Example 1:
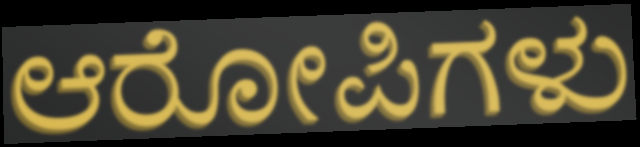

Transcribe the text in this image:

ಆರೋಪಿಗಳು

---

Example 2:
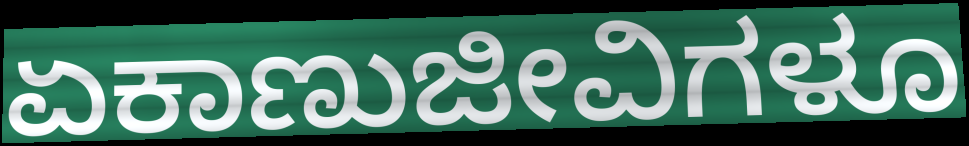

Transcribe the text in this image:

ಏಕಾಣುಜೀವಿಗಳೂ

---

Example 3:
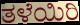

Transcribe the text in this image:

ತಳೆಯಿರಿ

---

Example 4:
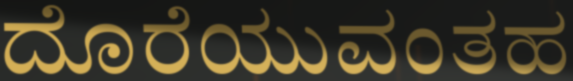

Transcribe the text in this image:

ದೊರೆಯುವಂತಹ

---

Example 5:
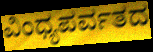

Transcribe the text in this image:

ವಿಂಧ್ಯಪರ್ವತದ